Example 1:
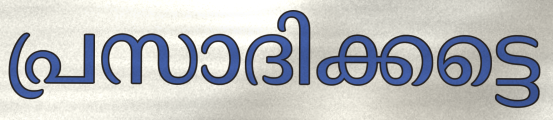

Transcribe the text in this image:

പ്രസാദിക്കട്ടെ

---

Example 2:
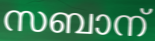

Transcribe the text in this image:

സബാന്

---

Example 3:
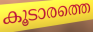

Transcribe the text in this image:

കൂടാരത്തെ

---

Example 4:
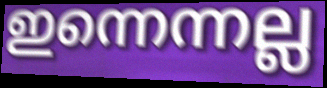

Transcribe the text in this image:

ഇന്നെന്നല്ല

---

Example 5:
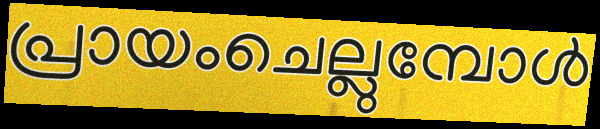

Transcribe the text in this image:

പ്രായംചെല്ലുമ്പോൾ